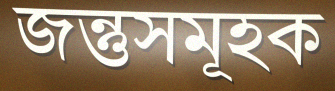
জন্তুসমূহক